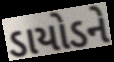
ડાયોડને